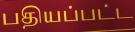
பதியப்பட்ட